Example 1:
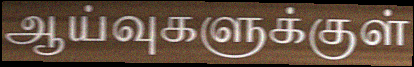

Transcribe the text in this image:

ஆய்வுகளுக்குள்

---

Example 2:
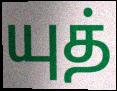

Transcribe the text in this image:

யுத்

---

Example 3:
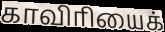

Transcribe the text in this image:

காவிரியைக்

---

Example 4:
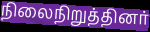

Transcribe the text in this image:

நிலைநிறுத்தினர்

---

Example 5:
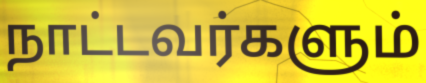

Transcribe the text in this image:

நாட்டவர்களும்